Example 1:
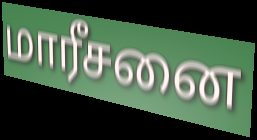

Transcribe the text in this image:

மாரீசனை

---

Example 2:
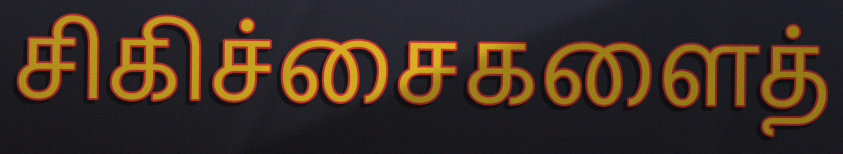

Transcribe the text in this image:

சிகிச்சைகளைத்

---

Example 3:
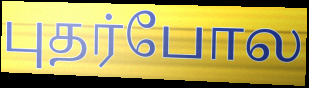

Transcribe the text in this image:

புதர்போல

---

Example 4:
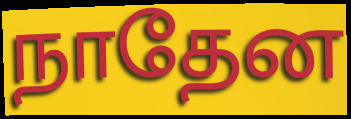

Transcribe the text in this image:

நாதேன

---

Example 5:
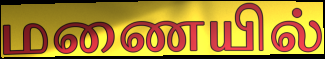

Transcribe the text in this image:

மணையில்